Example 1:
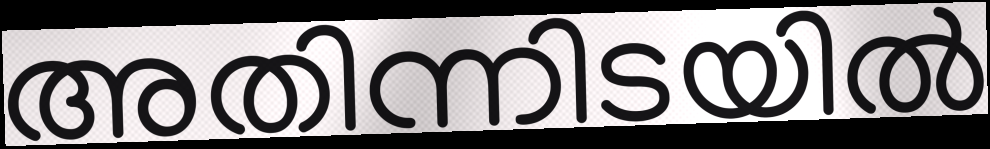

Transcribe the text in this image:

അതിന്നിടയിൽ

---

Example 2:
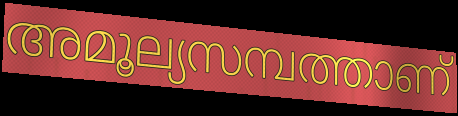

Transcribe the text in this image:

അമൂല്യസമ്പത്താണ്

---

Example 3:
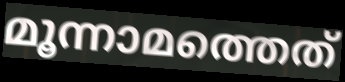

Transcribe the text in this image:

മൂന്നാമത്തെത്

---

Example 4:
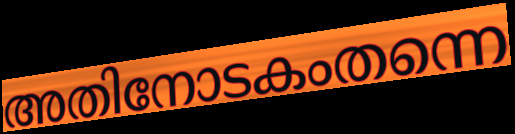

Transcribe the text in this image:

അതിനോടകംതന്നെ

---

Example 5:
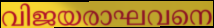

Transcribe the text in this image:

വിജയരാഘവനെ